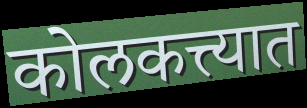
कोलकत्त्यात